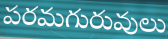
పరమగురువులు